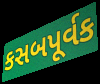
કસબપૂર્વક